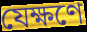
যেক্ষণে